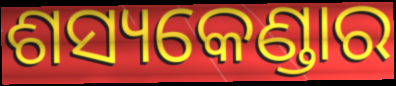
ଶସ୍ୟକେଣ୍ଡାର